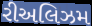
રીઅલિઝમ